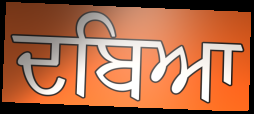
ਦਬਿਆ